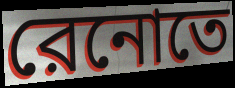
রেনোতে